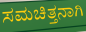
ಸಮಚಿತ್ತನಾಗಿ